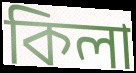
কিলা